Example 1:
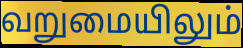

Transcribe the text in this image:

வறுமையிலும்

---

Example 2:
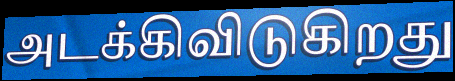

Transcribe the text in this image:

அடக்கிவிடுகிறது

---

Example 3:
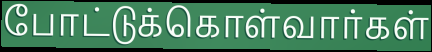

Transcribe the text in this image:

போட்டுக்கொள்வார்கள்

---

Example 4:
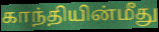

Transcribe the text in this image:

காந்தியின்மீது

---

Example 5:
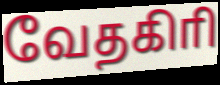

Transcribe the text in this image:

வேதகிரி